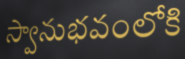
స్వానుభవంలోకి